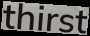
thirst